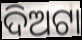
ଦିଅଟା